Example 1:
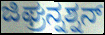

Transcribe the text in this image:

ಜಿಘ್ರನ್ನಶ್ನನ್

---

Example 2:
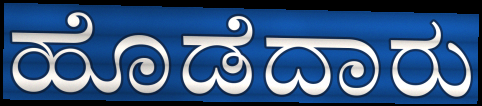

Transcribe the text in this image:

ಹೊಡೆದಾರು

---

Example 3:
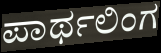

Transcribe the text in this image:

ಪಾರ್ಥಲಿಂಗ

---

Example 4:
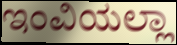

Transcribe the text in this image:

ಇಂವಿಯಲ್ಲಾ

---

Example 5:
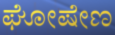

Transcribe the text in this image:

ಘೋಷೇಣ